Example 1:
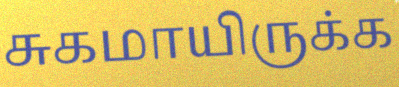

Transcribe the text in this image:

சுகமாயிருக்க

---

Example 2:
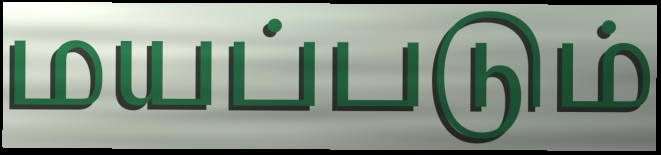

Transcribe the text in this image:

மயப்படும்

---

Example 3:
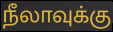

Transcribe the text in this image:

நீலாவுக்கு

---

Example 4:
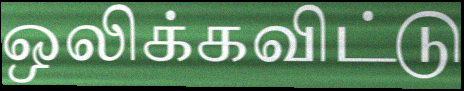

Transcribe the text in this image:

ஒலிக்கவிட்டு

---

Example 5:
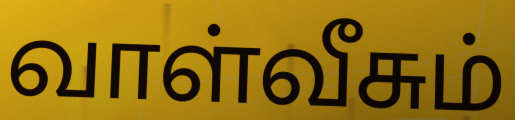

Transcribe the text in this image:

வாள்வீசும்